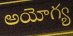
అయోగ్య